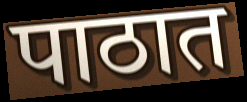
पाठात